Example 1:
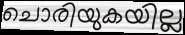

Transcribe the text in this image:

ചൊരിയുകയില്ല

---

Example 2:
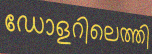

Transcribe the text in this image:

ഡോളറിലെത്തി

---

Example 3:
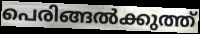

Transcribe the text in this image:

പെരിങ്ങൽക്കുത്ത്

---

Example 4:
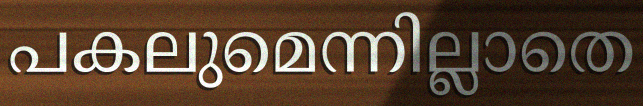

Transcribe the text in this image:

പകലുമെന്നില്ലാതെ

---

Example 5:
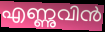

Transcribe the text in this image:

എണ്ണുവിൻ